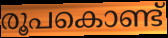
രൂപകൊണ്ട്